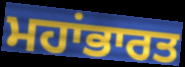
ਮਹਾਂਭਾਰਤ